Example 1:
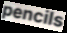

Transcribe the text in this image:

pencils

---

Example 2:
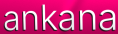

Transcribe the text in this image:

ankana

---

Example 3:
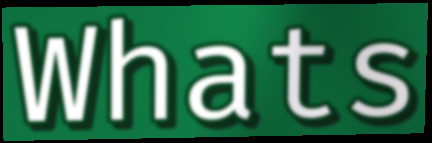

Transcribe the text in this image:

Whats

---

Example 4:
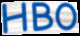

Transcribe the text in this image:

HBO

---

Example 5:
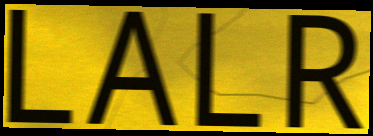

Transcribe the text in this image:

LALR